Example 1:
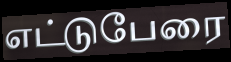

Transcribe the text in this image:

எட்டுபேரை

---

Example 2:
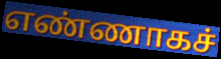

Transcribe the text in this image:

எண்ணாகச்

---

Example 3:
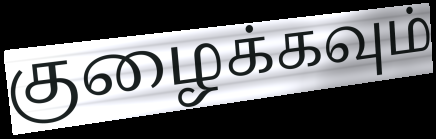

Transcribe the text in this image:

குழைக்கவும்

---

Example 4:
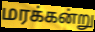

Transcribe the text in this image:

மரக்கன்று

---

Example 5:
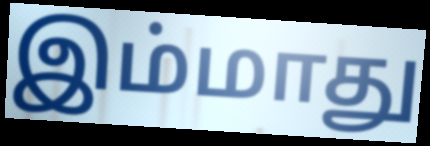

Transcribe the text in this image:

இம்மாது